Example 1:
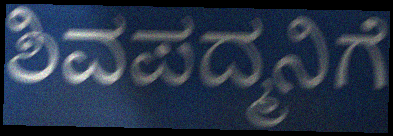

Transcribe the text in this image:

ಶಿವಪದ್ಮನಿಗೆ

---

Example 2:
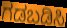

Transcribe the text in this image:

ಗಡಬಡಿಸಿ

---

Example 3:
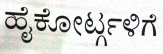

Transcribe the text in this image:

ಹೈಕೋರ್ಟ್ಗಳಿಗೆ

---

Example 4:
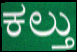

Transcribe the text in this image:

ಕಲ್ತು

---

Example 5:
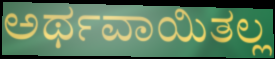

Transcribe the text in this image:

ಅರ್ಥವಾಯಿತಲ್ಲ